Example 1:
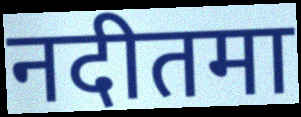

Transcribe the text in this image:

नदीतमा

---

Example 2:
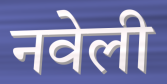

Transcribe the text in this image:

नवेली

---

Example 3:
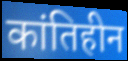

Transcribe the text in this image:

कांतिहीन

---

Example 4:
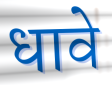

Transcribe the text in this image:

धावे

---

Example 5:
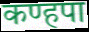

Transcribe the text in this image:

कण्हपा